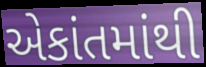
એકાંતમાંથી